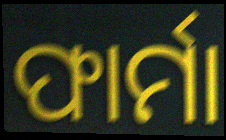
ଫାର୍ମା